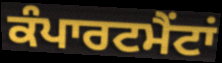
ਕੰਪਾਰਟਮੈਂਟਾਂ